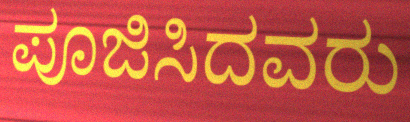
ಪೂಜಿಸಿದವರು